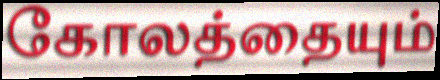
கோலத்தையும்